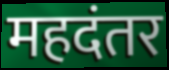
महदंतर